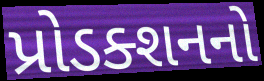
પ્રોડક્શનનો